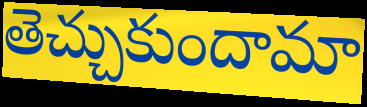
తెచ్చుకుందామా